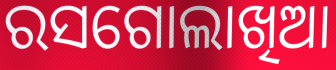
ରସଗୋଲାଖିଆ